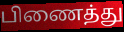
பிணைத்து